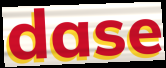
dase